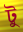
টু